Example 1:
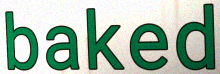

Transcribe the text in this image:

baked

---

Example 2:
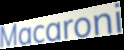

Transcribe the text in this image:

Macaroni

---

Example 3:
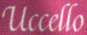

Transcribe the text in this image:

Uccello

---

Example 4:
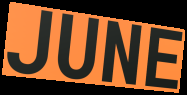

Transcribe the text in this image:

JUNE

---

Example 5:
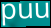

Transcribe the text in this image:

puu